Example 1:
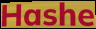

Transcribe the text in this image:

Hashe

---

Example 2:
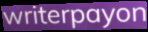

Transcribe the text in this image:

writerpayon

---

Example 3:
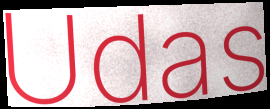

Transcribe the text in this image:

Udas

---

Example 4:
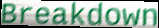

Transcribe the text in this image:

Breakdown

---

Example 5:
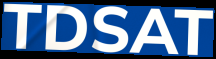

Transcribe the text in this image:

TDSAT